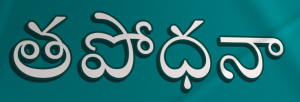
తపోధనా